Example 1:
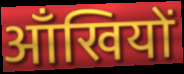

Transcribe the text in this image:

आँखियों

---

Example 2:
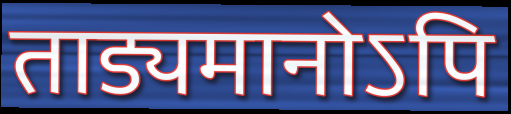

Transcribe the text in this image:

ताड्यमानोऽपि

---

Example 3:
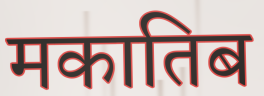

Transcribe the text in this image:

मकातिब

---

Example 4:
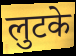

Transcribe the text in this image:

लुटके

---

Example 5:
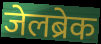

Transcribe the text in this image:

जेलब्रेक